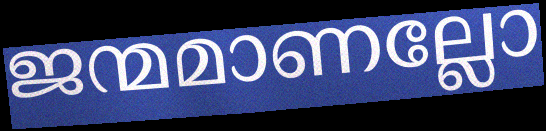
ജന്മമാണല്ലോ